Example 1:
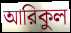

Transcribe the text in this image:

আরিকুল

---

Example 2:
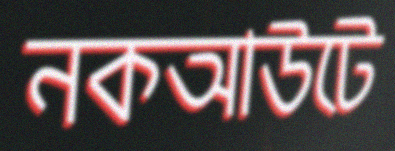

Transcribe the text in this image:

নকআউটে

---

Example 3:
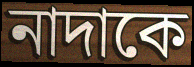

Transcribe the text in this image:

নাদাকে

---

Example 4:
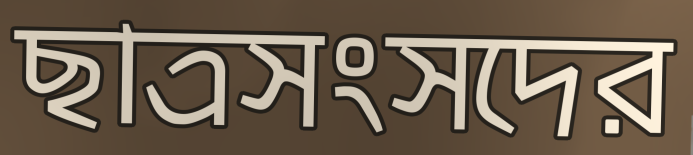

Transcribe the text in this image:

ছাত্রসংসদের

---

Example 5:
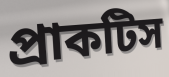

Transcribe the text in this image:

প্রাকটিস